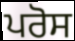
ਪਰੋਸ